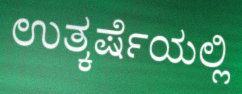
ಉತ್ಕರ್ಷೆಯಲ್ಲಿ